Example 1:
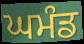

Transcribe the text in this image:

ਘਮੰਡ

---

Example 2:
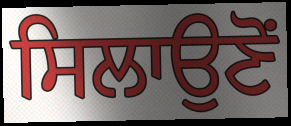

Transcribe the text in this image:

ਸਿਲਾਉਣੋਂ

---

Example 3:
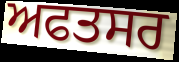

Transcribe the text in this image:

ਅਫਤਸਰ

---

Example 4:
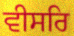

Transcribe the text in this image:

ਵੀਸਰਿ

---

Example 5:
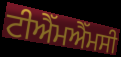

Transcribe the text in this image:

ਟੀਐੱਮਐੱਮਸੀ